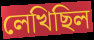
লেখিছিল